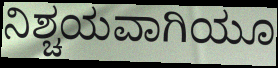
ನಿಶ್ಚಯವಾಗಿಯೂ